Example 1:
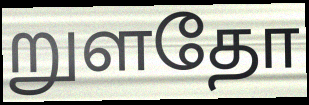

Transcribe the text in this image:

றுளதோ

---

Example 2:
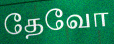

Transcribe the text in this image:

தேவோ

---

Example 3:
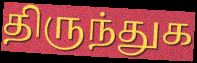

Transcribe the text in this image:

திருந்துக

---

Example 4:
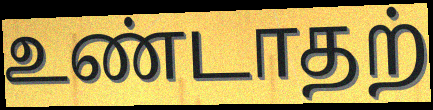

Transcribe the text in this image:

உண்டாதற்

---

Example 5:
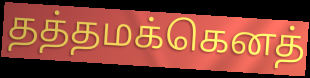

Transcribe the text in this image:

தத்தமக்கெனத்